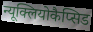
न्यूक्लियोकैप्सिड